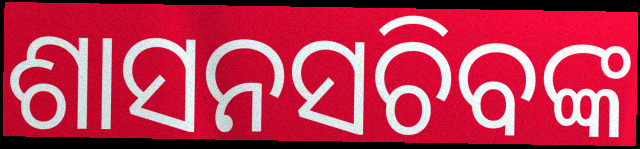
ଶାସନସଚିବଙ୍କ